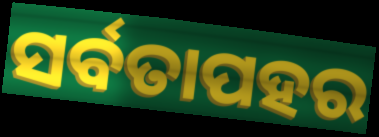
ସର୍ବତାପହର